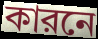
কারনে